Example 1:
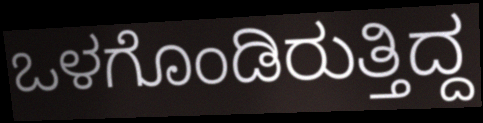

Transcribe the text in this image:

ಒಳಗೊಂಡಿರುತ್ತಿದ್ದ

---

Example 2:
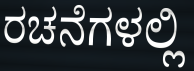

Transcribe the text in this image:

ರಚನೆಗಳಲ್ಲಿ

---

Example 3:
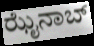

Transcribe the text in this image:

ಝೈನಾಬ್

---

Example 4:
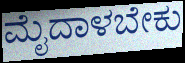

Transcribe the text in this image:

ಮೈದಾಳಬೇಕು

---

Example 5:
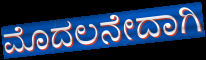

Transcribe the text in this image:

ಮೊದಲನೇದಾಗಿ